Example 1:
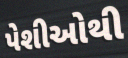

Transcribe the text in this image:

પેશીઓથી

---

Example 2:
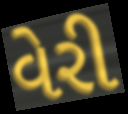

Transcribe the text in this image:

વેરી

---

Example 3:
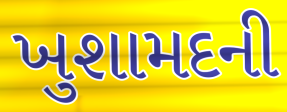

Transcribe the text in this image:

ખુશામદની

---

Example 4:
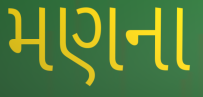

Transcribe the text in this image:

મણના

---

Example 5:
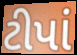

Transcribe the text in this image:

ટીપાં